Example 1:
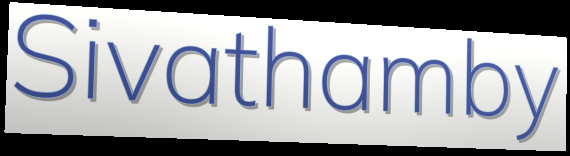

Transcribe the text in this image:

Sivathamby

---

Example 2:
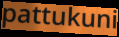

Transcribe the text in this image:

pattukuni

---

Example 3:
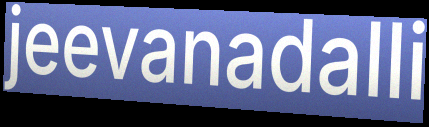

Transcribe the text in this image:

jeevanadalli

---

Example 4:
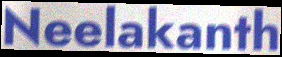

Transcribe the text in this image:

Neelakanth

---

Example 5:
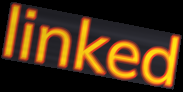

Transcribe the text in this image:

linked